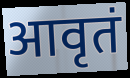
आवृतं